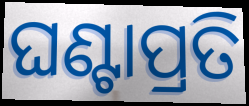
ଘଣ୍ଟାପ୍ରତି